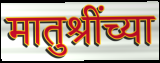
मातुश्रींच्या